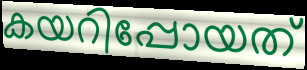
കയറിപ്പോയത്